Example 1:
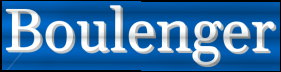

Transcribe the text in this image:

Boulenger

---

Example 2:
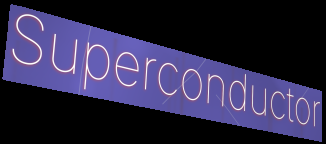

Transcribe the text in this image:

Superconductor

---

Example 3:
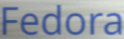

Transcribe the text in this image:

Fedora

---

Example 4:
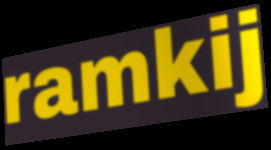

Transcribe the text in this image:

ramkij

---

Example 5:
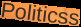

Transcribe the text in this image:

Politicss